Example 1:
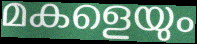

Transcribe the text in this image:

മകളെയും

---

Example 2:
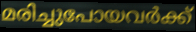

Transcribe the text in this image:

മരിച്ചുപോയവർക്ക്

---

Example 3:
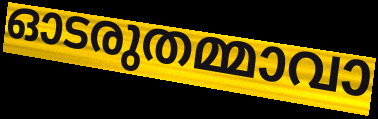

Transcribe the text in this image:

ഓടരുതമ്മാവാ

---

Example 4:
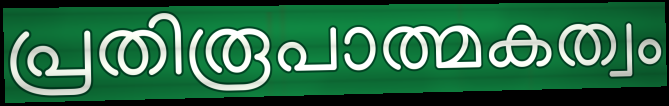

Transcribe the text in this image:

പ്രതിരൂപാത്മകത്വം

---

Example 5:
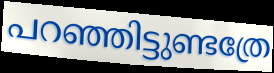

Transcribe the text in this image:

പറഞ്ഞിട്ടുണ്ടത്രേ